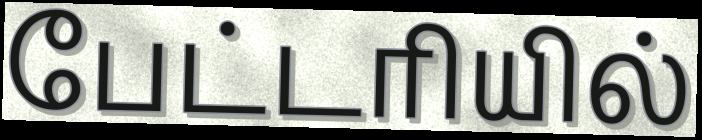
பேட்டரியில்